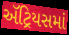
ઍટ્રિયસમાં